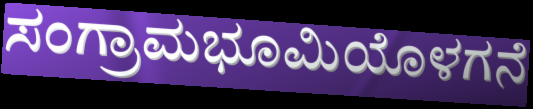
ಸಂಗ್ರಾಮಭೂಮಿಯೊಳಗನೆ